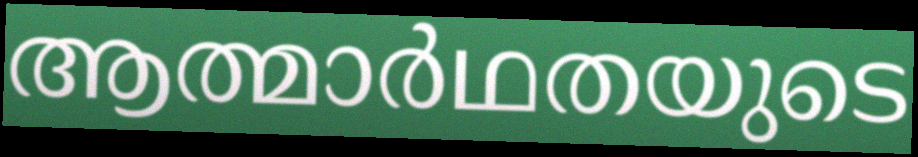
ആത്മാർഥതയുടെ